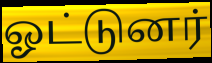
ஓட்டுனர்